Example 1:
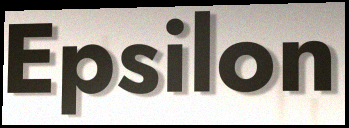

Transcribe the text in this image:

Epsilon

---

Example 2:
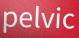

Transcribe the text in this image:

pelvic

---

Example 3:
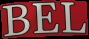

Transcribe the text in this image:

BEL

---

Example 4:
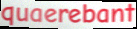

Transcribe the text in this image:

quaerebant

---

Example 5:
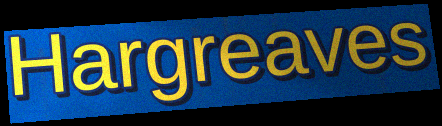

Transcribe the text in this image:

Hargreaves